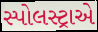
સ્પોલસ્ટ્રાએ